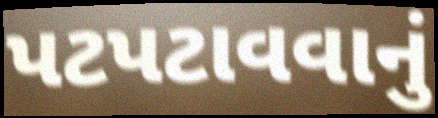
પટપટાવવાનું